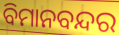
ବିମାନବନ୍ଦର